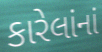
કારેલાંનાં